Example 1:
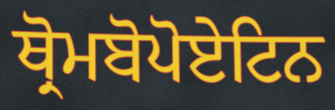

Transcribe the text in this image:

ਥ੍ਰੋਮਬੋਪੋਏਟਿਨ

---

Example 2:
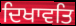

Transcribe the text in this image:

ਦਿਖਾਵਤਿ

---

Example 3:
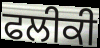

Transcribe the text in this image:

ਫਲੀਕੀ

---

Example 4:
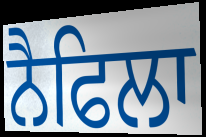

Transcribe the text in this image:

ਨੈਫਿਲਾ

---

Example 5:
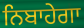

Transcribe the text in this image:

ਨਿਬਾਹੇਗਾ